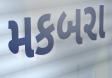
મકબરા